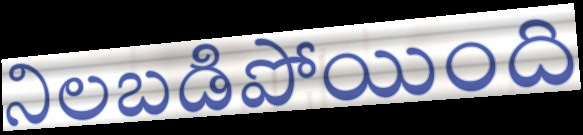
నిలబడిపోయింది